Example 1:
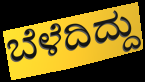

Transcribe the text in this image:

ಬೆಳೆದಿದ್ದು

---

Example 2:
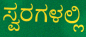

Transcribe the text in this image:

ಸ್ವರಗಳಲ್ಲಿ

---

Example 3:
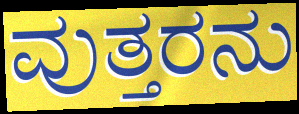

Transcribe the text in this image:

ವುತ್ತರನು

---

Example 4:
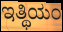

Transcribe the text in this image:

ಇತ್ಥಿಯಂ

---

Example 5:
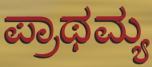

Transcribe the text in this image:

ಪ್ರಾಥಮ್ಯ